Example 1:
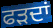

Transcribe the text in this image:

ਫੜਦਾਂ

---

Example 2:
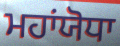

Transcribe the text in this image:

ਮਹਾਂਯੋਧਾ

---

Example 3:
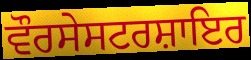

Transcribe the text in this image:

ਵੌਰਸੇਸਟਰਸ਼ਾਇਰ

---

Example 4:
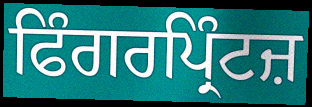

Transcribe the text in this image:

ਫਿੰਗਰਪ੍ਰਿੰਟਜ਼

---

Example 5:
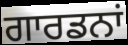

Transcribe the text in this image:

ਗਾਰਡਨਾਂ